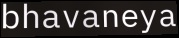
bhavaneya